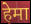
हेमा